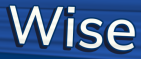
Wise